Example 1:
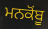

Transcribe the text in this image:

ਮਨਕੋਂਬੂ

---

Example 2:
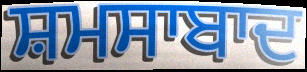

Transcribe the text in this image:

ਸ਼ਮਸਾਬਾਦ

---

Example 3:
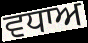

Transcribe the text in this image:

ਵਧਾਅ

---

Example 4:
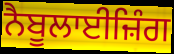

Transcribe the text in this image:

ਨੈਬੂਲਾਈਜ਼ਿੰਗ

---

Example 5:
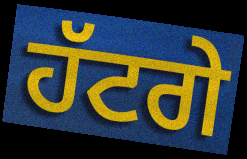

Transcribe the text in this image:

ਹੱਟਗੇ